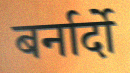
बर्नार्दो